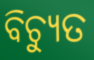
ବିଚ୍ୟୁତ